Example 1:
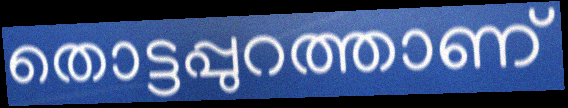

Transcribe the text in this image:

തൊട്ടപ്പുറത്താണ്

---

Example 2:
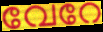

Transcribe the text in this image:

വേറേ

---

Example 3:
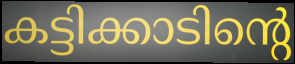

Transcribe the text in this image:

കട്ടിക്കാടിന്റെ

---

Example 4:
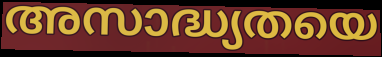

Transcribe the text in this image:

അസാദ്ധ്യതയെ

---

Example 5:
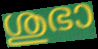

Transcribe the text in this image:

ശുഭാ